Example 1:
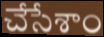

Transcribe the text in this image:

చేసేశాం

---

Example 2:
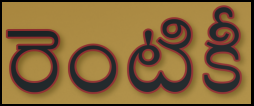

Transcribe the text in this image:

రెంటికీ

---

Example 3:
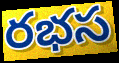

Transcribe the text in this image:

రభస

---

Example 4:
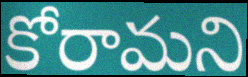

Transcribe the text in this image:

కోరామని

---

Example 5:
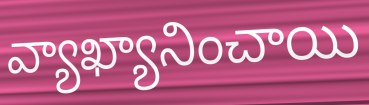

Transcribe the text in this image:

వ్యాఖ్యానించాయి